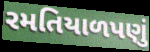
રમતિયાળપણું